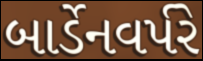
બાર્ડેનવર્પરે